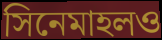
সিনেমাহলও